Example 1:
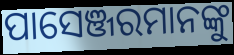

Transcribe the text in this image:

ପାସେଞ୍ଜରମାନଙ୍କୁ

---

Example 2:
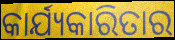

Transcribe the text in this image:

କାର୍ଯ୍ୟକାରିତାର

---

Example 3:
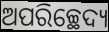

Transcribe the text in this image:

ଅପରିଚ୍ଛେଦ୍ୟ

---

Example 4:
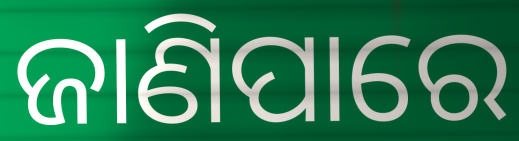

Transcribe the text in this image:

ଜାଣିପାରେ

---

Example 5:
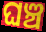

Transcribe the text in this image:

ଘଞ୍ଚ